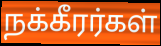
நக்கீரர்கள்